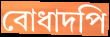
বোধাদপি